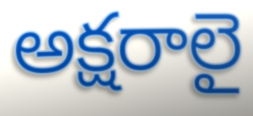
అక్షరాలై